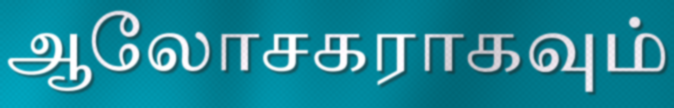
ஆலோசகராகவும்